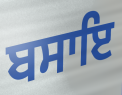
ਬਸਾਇ